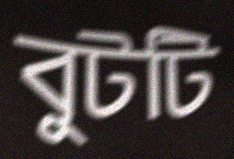
বুটটি